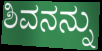
ಶಿವನನ್ನು